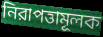
নিরাপত্তামূলক